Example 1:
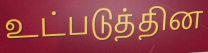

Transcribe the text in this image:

உட்படுத்தின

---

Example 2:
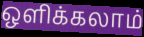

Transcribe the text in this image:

ஒளிக்கலாம்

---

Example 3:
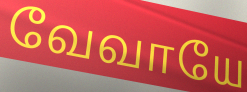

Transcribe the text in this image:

வேவாயே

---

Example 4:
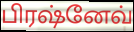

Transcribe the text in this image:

பிரஷ்னேவ்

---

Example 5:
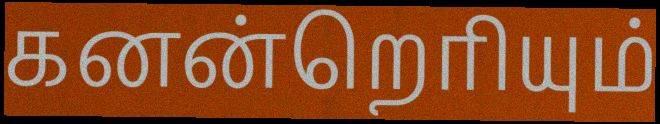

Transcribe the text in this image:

கனன்றெரியும்